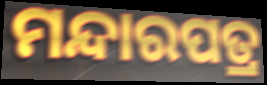
ମନ୍ଦାରପତ୍ର